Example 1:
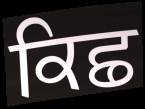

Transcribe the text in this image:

ਕਿਛ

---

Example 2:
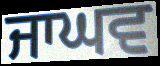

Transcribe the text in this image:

ਜਾਘਵ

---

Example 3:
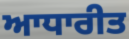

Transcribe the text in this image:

ਆਧਾਰੀਤ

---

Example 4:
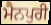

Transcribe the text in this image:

ਮੈਨਪੁਰੀ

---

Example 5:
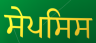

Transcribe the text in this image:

ਸੇਪਸਿਸ